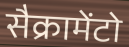
सैक्रामेंटो